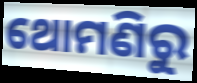
ଥୋମଣିରୁ